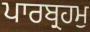
ਪਾਰਬ੍ਰਹਮੁ